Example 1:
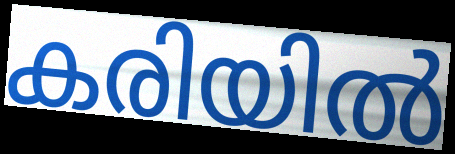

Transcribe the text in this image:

കരിയിൽ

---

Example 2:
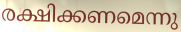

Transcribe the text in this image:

രക്ഷിക്കണമെന്നു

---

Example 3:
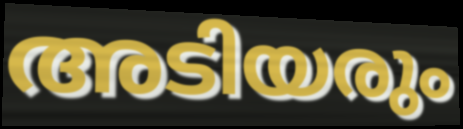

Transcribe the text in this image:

അടിയരും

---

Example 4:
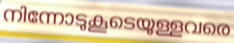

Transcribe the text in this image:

നിന്നോടുകൂടെയുള്ളവരെ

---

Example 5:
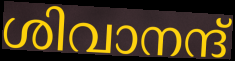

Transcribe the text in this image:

ശിവാനന്ദ്